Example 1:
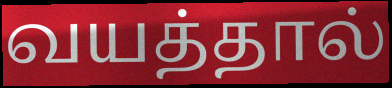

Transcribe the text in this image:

வயத்தால்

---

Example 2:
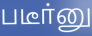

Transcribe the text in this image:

படீர்னு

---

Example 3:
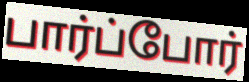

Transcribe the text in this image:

பார்ப்போர்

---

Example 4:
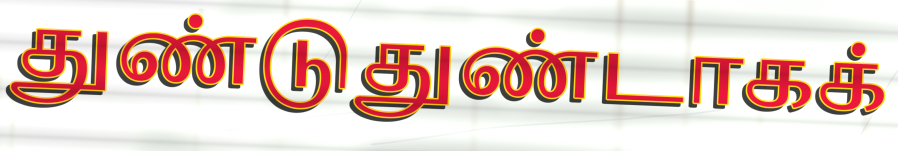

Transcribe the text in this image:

துண்டுதுண்டாகக்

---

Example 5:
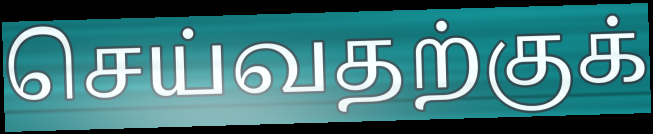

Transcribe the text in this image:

செய்வதற்குக்